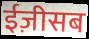
ईज़ीसब